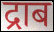
द्राब